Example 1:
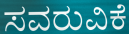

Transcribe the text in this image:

ಸವರುವಿಕೆ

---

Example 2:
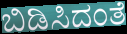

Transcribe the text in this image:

ಬಿಡಿಸಿದಂತೆ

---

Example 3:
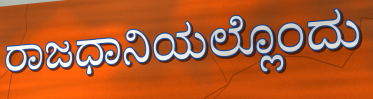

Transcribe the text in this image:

ರಾಜಧಾನಿಯಲ್ಲೊಂದು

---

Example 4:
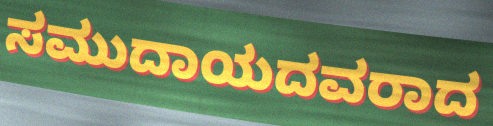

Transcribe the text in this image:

ಸಮುದಾಯದವರಾದ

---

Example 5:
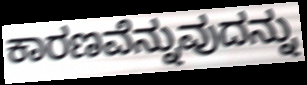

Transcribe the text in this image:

ಕಾರಣವೆನ್ನುವುದನ್ನು